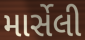
માર્સેલી